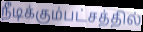
நீடிக்கும்பட்சத்தில்